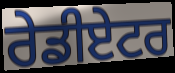
ਰੇਡੀਏਟਰ